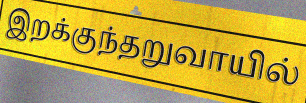
இறக்குந்தறுவாயில்